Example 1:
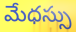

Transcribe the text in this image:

మేధస్సు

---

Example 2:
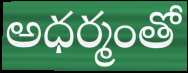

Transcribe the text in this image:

అధర్మంతో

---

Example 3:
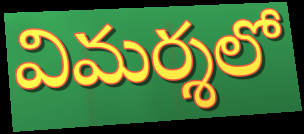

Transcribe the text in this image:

విమర్శలో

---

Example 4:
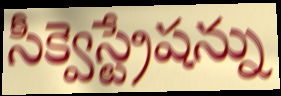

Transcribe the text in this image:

సీక్వెస్ట్రేషన్ను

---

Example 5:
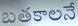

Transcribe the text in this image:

బతకాలనే